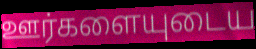
ஊர்களையுடைய